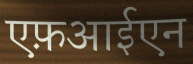
एफ़आईएन